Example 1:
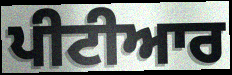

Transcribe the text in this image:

ਪੀਟੀਆਰ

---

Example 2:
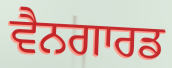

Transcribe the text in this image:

ਵੈਨਗਾਰਡ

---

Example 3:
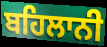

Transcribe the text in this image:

ਬਹਿਲਾਨੀ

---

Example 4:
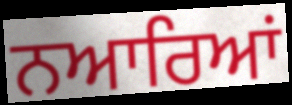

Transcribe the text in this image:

ਨਆਰਿਆਂ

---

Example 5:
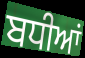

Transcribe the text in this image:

ਬਧੀਆਂ